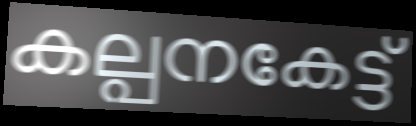
കല്പനകേട്ട്